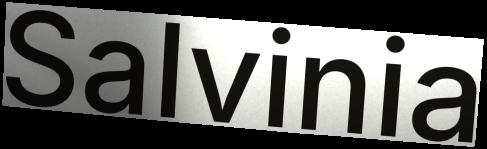
Salvinia